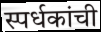
स्पर्धकांची